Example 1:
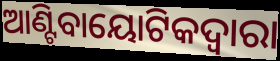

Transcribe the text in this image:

ଆଣ୍ଟିବାୟୋଟିକଦ୍ୱାରା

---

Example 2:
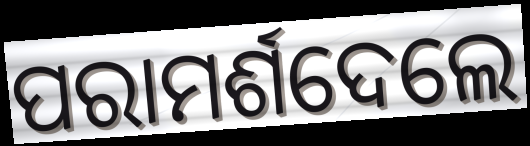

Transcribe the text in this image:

ପରାମର୍ଶଦେଲେ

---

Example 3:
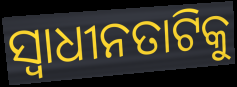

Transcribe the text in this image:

ସ୍ୱାଧୀନତାଟିକୁ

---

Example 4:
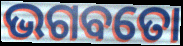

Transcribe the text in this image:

ଭଗବତୋ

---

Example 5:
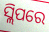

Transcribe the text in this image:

ସ୍ଲିପରେ